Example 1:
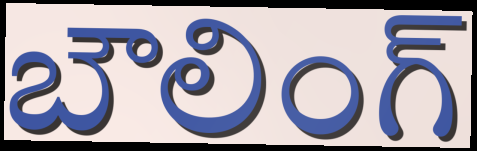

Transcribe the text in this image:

బౌలింగ్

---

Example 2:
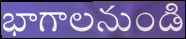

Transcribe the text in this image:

భాగాలనుండి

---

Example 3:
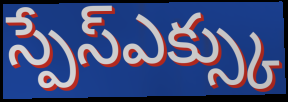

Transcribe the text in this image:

స్పేస్ఎక్స్కు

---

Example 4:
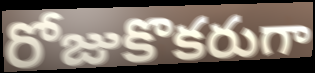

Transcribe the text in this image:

రోజుకొకరుగా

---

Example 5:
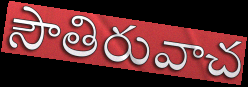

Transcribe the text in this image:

సౌతిరువాచ